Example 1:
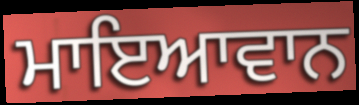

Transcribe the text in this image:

ਮਾਇਆਵਾਨ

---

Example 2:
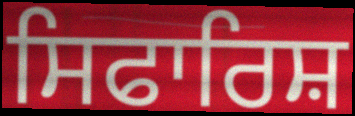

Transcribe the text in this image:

ਸਿਫਾਰਿਸ਼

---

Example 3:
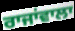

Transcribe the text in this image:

ਰਾਜਾਂਵਾਲਾ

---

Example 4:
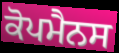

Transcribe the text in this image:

ਕੋਪਮੈਨਸ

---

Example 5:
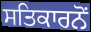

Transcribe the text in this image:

ਸਤਿਕਾਰਨੋਂ